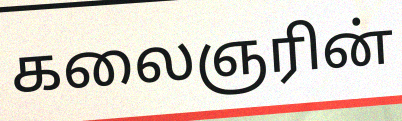
கலைஞரின்